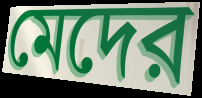
মেদের